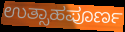
ಉತ್ಸಾಹಪೂರ್ಣ